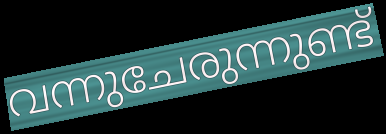
വന്നുചേരുന്നുണ്ട്